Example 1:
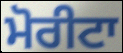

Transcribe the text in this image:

ਮੋਰੀਟਾ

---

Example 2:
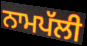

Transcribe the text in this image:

ਨਾਮਪੱਲੀ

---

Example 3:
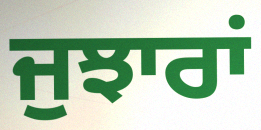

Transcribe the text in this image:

ਜੁਝਾਰਾਂ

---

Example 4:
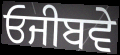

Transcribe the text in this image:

ਓਜੀਬਵੇ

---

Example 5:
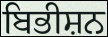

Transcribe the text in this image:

ਬਿਭੀਸ਼ਨ